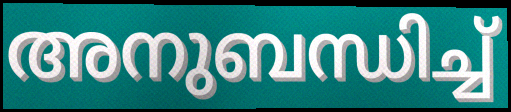
അനുബന്ധിച്ച്